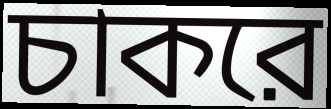
চাকরে